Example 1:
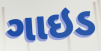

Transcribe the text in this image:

ગાઇડ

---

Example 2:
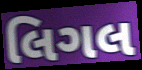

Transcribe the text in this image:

લિગલ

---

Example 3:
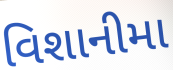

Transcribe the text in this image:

વિશાનીમા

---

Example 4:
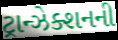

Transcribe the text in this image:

ટ્રાન્ઝેક્શનની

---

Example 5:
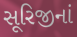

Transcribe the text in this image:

સૂરિજીનાં